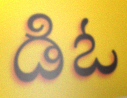
డిఓ